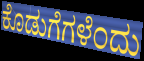
ಕೊಡುಗೆಗಳೆಂದು